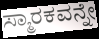
ಸ್ಮಾರಕವನ್ನೇ